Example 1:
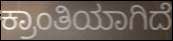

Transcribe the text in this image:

ಕ್ರಾಂತಿಯಾಗಿದೆ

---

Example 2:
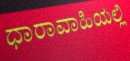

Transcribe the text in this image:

ಧಾರಾವಾಹಿಯಲ್ಲಿ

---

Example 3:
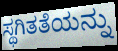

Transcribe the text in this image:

ಸ್ಥಗಿತತೆಯನ್ನು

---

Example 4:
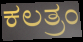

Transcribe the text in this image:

ಕಲತ್ರಂ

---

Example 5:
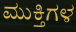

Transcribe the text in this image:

ಮುಕ್ತಿಗಳ